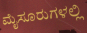
ಮೈಸೂರುಗಳಲ್ಲಿ